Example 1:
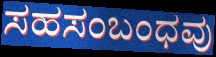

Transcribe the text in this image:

ಸಹಸಂಬಂಧವು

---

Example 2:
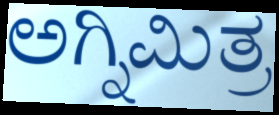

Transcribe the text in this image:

ಅಗ್ನಿಮಿತ್ರ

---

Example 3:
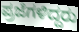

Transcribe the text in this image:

ಪ್ರಜೆಗಳಿದ್ದರು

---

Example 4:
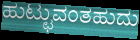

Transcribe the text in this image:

ಹುಟ್ಟುವಂತಹುದು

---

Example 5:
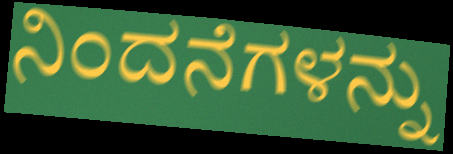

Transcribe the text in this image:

ನಿಂದನೆಗಳನ್ನು